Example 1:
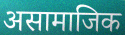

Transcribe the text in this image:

असामाजिक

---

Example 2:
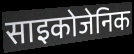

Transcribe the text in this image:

साइकोजेनिक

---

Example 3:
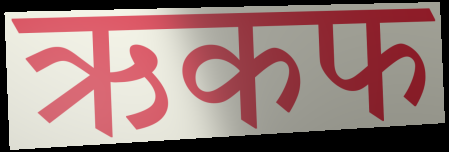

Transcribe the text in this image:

ऋकफ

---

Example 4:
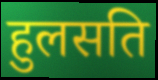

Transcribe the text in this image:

हुलसति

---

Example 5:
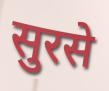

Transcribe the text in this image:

सुरसे